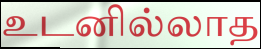
உடனில்லாத